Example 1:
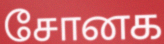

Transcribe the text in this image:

சோனக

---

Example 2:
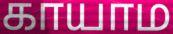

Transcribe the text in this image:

காயாம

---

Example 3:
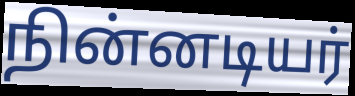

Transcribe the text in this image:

நின்னடியர்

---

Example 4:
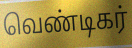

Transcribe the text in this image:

வெண்டிகர்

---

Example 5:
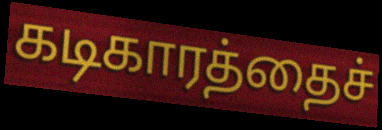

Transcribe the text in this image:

கடிகாரத்தைச்